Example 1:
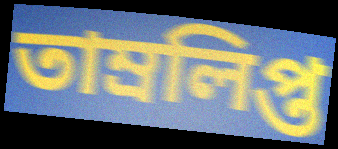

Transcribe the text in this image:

তাম্রলিপ্ত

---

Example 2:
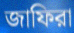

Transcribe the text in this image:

জাফিরা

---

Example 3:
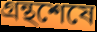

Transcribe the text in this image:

গ্রন্থশেষে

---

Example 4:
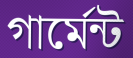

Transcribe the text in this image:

গার্মেন্ট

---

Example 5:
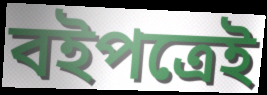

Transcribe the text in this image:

বইপত্রেই